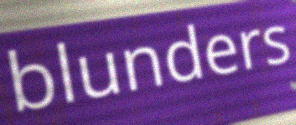
blunders